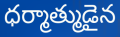
ధర్మాత్ముడైన